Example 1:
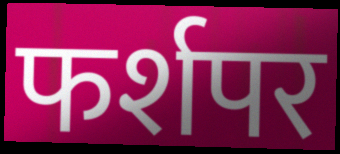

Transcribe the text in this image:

फर्शपर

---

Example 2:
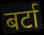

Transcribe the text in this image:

बर्टा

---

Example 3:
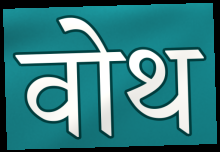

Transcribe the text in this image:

वोथ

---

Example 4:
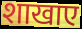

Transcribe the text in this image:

शाखाए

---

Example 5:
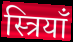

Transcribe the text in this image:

स्‍त्रियाँ